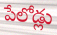
పేలోడ్లు